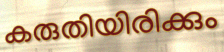
കരുതിയിരിക്കും